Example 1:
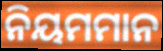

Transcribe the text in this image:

ନିୟମମାନ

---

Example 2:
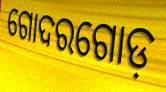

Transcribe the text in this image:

ଗୋଦରଗୋଡ଼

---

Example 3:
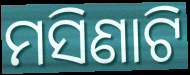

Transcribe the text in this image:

ମସିଣାଟି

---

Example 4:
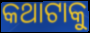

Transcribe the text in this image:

କଥାଟାକୁ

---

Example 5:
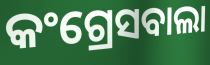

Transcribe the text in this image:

କଂଗ୍ରେସବାଲା